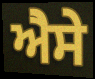
ਐੇਸੇ